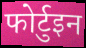
फोर्टुइन